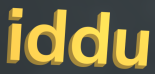
iddu